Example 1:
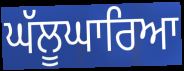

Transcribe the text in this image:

ਘੱਲੂਘਾਰਿਆ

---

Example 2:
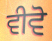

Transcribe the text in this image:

ਵੀਵੋ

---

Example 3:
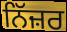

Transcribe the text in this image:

ਨਿੱਜ਼ਰ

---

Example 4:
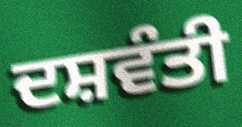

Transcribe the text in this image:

ਦਸ਼ਵੰਤੀ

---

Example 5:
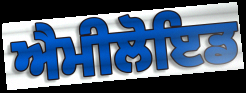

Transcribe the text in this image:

ਐਮੀਲੋਇਡ